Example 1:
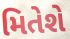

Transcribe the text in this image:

મિતેશે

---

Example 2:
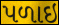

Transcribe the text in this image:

પળાઇ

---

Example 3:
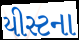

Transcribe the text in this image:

યીસ્ટના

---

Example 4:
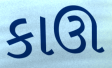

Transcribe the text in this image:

કાઊ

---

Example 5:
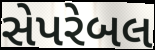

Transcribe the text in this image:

સેપરેબલ